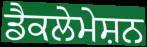
ਡੈਕਲੇਮੇਸ਼ਨ